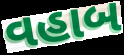
વહાબ